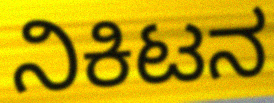
ನಿಕಿಟನ